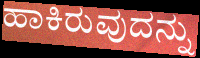
ಹಾಕಿರುವುದನ್ನು